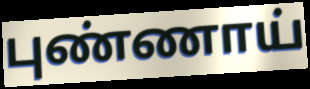
புண்ணாய்